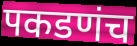
पकडणंच